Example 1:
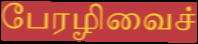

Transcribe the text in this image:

பேரழிவைச்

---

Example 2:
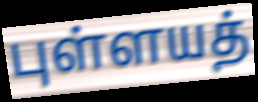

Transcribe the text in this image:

புள்ளயத்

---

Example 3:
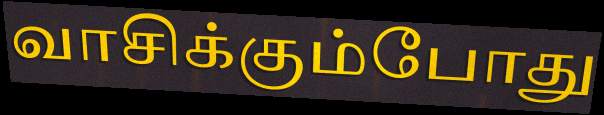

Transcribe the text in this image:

வாசிக்கும்போது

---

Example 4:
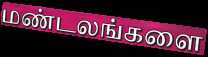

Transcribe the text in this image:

மண்டலங்களை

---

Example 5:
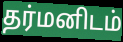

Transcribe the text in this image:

தர்மனிடம்